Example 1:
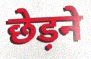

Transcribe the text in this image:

छेड़ने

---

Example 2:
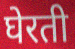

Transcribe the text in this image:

घेरती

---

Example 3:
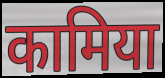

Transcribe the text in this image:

कामिया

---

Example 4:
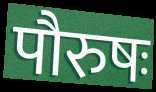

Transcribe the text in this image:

पौरुषः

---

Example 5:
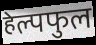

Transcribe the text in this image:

हेल्पफुल